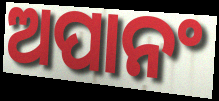
ଅପାନଂ